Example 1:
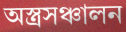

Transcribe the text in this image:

অস্ত্রসঞ্চালন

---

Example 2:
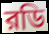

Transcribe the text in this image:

রডি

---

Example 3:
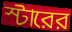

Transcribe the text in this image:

স্টারের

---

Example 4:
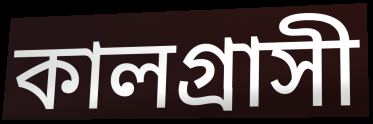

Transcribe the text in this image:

কালগ্রাসী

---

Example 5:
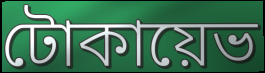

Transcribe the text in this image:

টোকায়েভ